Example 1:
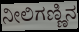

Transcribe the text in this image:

ನೀಲಿಗಣ್ಣಿನ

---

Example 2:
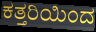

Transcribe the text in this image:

ಕತ್ತರಿಯಿಂದ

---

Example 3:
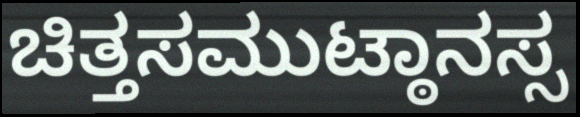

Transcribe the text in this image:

ಚಿತ್ತಸಮುಟ್ಠಾನಸ್ಸ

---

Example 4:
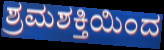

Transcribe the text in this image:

ಶ್ರಮಶಕ್ತಿಯಿಂದ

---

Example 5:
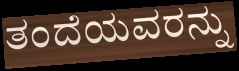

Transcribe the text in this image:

ತಂದೆಯವರನ್ನು